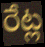
రేట్ల